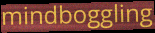
mindboggling